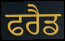
ਫਰੈਡ